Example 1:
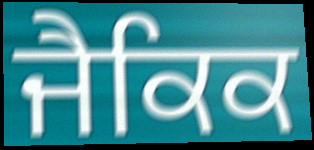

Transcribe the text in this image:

ਜੈਕਿਕ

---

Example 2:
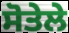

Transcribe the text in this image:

ਸੋਤੇਲੇ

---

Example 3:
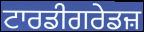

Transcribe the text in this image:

ਟਾਰਡੀਗਰੇਡਜ਼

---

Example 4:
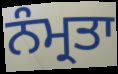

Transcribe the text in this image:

ਨੰਮ੍ਰਤਾ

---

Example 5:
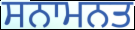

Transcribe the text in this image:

ਸਨਾਮਨਤ